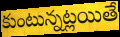
కుంటున్నట్లయితే